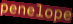
penelope